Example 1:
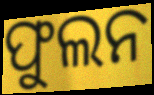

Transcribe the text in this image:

ଫୁଲନ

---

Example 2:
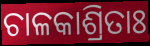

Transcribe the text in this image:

ଚାଳକାଶ୍ରିତାଃ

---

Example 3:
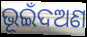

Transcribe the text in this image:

ଭୂଇଁଦଅଣ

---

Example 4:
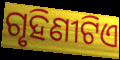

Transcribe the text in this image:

ଗୃହିଣୀଟିଏ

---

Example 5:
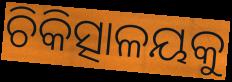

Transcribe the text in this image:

ଚିକିତ୍ସାଳୟକୁ